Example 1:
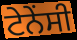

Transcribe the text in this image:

ਟੇਨੇਂਸੀ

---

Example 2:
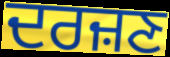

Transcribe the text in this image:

ਦਰਜ਼ਣ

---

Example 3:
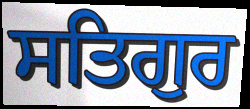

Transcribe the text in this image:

ਸਤਿਗੁਰ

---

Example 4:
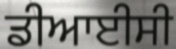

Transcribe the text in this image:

ਡੀਆਈਸੀ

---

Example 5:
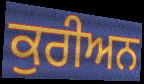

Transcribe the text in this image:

ਕੁਰੀਅਨ